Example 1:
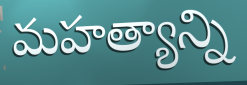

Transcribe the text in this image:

మహత్యాన్ని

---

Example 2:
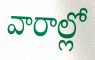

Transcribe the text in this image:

వారాల్లో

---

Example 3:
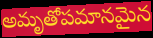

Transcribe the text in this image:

అమృతోపమానమైన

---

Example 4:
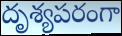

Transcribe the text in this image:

దృశ్యపరంగా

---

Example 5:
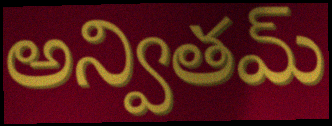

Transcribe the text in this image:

అన్వితమ్